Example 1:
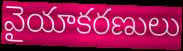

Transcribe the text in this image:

వైయాకరణులు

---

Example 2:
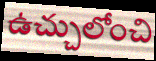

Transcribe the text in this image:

ఉచ్చులోంచి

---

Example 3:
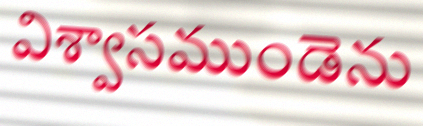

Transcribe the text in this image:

విశ్వాసముండెను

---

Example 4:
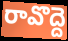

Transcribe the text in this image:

రావొద్దె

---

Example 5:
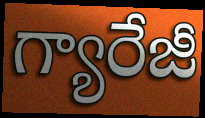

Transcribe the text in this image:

గ్యారేజీ